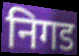
निगड